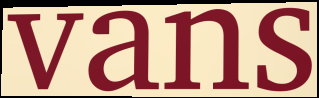
vans